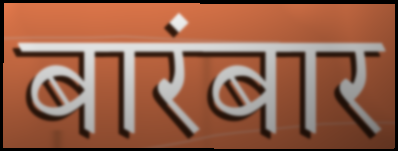
बारंबार